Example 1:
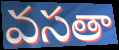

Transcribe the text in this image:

వసతా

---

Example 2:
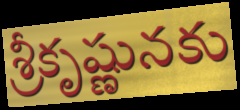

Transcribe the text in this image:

శ్రీకృష్ణునకు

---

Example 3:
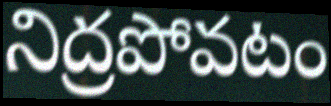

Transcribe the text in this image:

నిద్రపోవటం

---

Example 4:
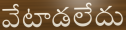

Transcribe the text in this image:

వేటాడలేదు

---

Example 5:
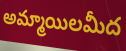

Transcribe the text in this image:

అమ్మాయిలమీద